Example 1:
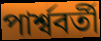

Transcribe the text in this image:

পাৰ্শ্ববৰ্তী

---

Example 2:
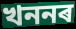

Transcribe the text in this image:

খননৰ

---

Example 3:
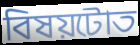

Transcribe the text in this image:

বিষয়টোত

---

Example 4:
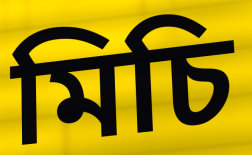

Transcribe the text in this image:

মিচি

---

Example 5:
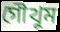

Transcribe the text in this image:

গৌথুম